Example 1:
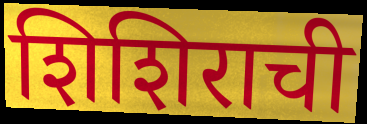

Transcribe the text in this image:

शिशिराची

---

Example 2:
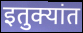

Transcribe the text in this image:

इतुक्यांत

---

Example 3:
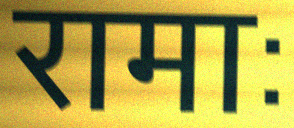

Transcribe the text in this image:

रामाः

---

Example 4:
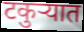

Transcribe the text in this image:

टकुर्‍यात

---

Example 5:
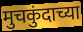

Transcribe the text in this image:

मुचकुंदाच्या